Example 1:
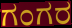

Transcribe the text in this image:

ಗಂಗರ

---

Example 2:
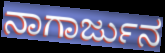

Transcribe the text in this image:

ನಾಗಾರ್ಜುನ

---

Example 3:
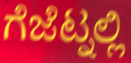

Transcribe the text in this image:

ಗೆಜೆಟ್ನಲ್ಲಿ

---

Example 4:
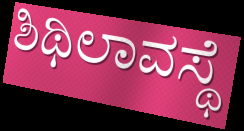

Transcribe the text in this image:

ಶಿಥಿಲಾವಸ್ಥೆ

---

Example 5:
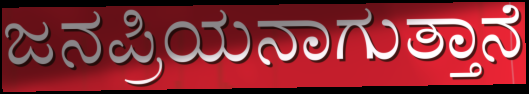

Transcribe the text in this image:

ಜನಪ್ರಿಯನಾಗುತ್ತಾನೆ